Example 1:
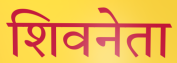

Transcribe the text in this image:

शिवनेता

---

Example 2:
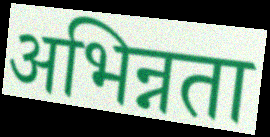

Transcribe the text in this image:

अभिन्नता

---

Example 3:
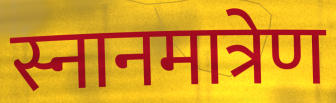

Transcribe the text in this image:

स्नानमात्रेण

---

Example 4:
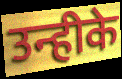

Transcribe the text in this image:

उन्हीके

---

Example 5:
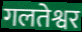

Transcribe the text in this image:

गलतेश्वर